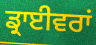
ਡ੍ਰਾਈਵਰਾਂ